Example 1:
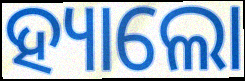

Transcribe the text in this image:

ହ୍ୟାଲୋ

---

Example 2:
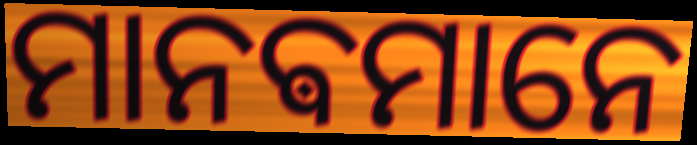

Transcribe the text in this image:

ମାନଵମାନେ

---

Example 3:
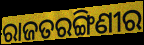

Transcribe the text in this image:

ରାଜତରଙ୍ଗିଣୀର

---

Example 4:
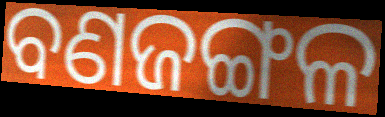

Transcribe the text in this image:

ବଣଜଙ୍ଗଳ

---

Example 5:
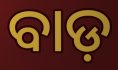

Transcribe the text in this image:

ବାଡ଼